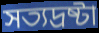
সত্যদ্রষ্টা